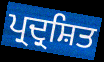
ਪ੍ਰਦ੍ਰਸ਼ਿਤ